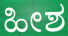
ಹೀಶ